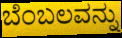
ಬೆಂಬಲವನ್ನು